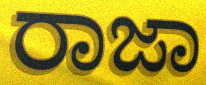
ರಾಜಾ